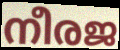
നീരജ